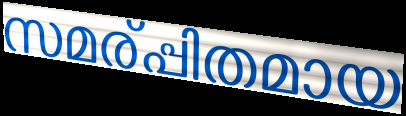
സമര്പ്പിതമായ